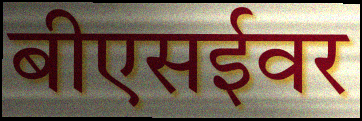
बीएसईवर